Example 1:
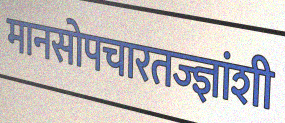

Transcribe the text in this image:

मानसोपचारतज्ज्ञांशी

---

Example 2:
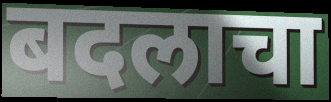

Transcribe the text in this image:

बदलाचा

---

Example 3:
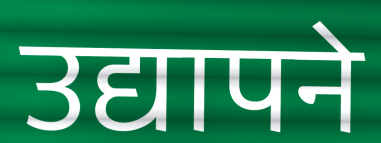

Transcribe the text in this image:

उद्यापने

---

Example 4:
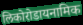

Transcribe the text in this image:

लिकोरोडायनामिक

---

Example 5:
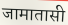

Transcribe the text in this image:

जामातासी